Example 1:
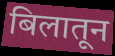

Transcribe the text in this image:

बिलातून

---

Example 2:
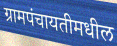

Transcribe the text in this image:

ग्रामपंचायतीमधील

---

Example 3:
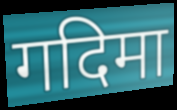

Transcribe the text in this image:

गदिमा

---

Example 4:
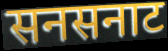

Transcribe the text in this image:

सनसनाट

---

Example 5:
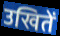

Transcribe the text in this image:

उखितें